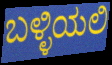
ಬಳ್ಳಿಯಲಿ